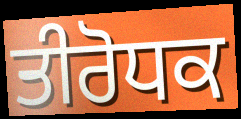
ਤੀਰੋਧਕ